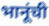
भानूंची